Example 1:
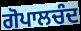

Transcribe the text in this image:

ਗੋਪਾਲਚੰਦ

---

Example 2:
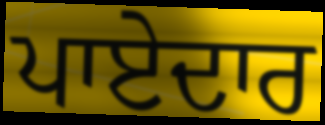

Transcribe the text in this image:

ਪਾਏਦਾਰ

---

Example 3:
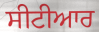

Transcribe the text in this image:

ਸੀਟੀਆਰ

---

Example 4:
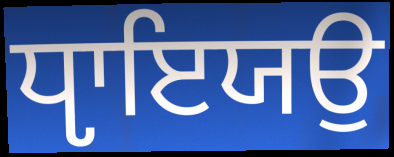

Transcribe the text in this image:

ਧੵਾਇਯਉ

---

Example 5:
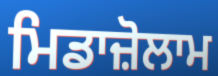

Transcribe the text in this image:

ਮਿਡਾਜ਼ੋਲਾਮ